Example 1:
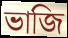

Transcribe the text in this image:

ভাজি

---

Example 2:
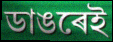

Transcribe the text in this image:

ডাঙৰেই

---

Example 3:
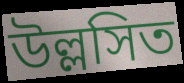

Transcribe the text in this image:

উল্লসিত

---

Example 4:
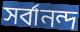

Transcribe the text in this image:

সৰ্বানন্দ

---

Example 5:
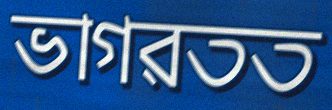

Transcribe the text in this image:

ভাগৱতত